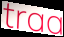
traa